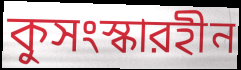
কুসংস্কারহীন